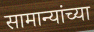
सामान्यांच्या